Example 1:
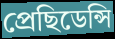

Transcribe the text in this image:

প্ৰেছিডেন্সি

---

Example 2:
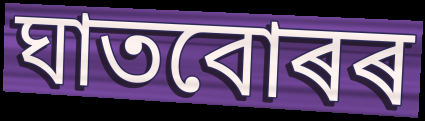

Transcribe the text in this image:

ঘাতবোৰৰ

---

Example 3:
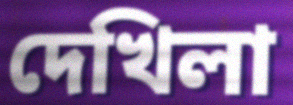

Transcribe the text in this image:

দেখিলা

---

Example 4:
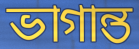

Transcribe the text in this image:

ভাগান্ত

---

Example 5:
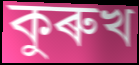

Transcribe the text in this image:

কুৰুখ